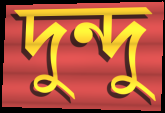
দুন্দু